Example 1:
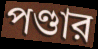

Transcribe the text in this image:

পণ্ডার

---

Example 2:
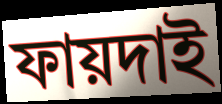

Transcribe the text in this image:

ফায়দাই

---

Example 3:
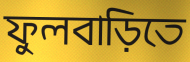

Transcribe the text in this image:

ফুলবাড়িতে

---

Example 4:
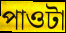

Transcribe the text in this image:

পাওটা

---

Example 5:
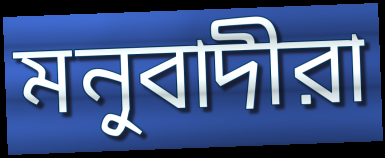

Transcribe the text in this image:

মনুবাদীরা